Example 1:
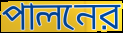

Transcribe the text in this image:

পালনের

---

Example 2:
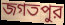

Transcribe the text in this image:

জগতপুর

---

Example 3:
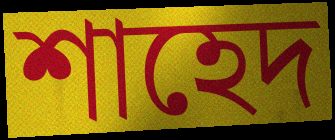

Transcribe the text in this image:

শাহেদ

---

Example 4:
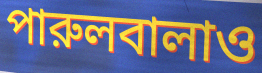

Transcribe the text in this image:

পারুলবালাও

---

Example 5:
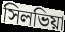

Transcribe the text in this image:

সিলভিয়া